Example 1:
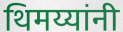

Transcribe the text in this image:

थिमय्यांनी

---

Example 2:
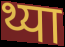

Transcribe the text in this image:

थ्या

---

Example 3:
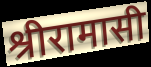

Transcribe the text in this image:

श्रीरामासी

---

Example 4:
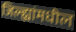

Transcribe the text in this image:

जिल्ह्यांमधील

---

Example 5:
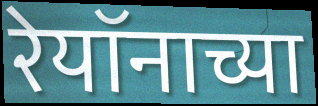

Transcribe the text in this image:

रेयॉनाच्या